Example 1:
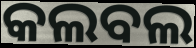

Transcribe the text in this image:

କଲବଲ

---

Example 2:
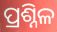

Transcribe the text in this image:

ପ୍ରଶ୍ନିଳ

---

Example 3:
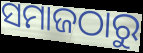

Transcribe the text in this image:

ସମାଜଠାରୁ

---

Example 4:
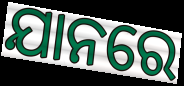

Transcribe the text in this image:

ଯାନରେ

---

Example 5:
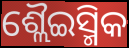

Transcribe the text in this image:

ଶ୍ଲୈଇସ୍ମିକ